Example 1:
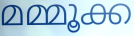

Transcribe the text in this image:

മമ്മൂക്ക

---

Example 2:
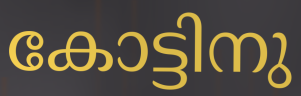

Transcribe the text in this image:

കോട്ടിനു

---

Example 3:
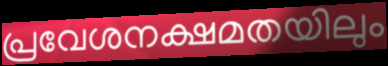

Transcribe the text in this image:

പ്രവേശനക്ഷമതയിലും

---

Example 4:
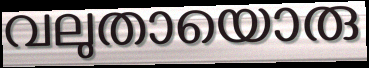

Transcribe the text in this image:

വലുതായൊരു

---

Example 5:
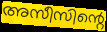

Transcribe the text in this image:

അസീസിന്റെ